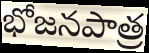
భోజనపాత్ర